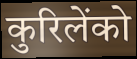
कुरिलेंको